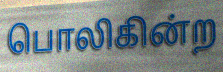
பொலிகின்ற